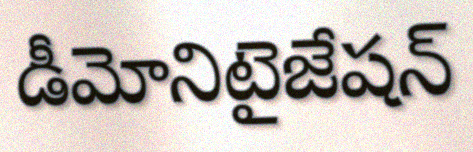
డీమోనిటైజేషన్